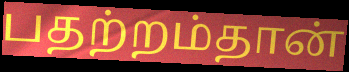
பதற்றம்தான்